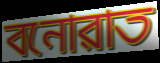
বনোৱাত